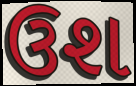
ઉશ